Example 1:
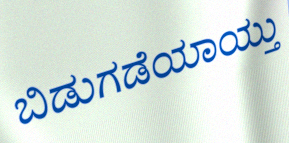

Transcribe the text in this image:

ಬಿಡುಗಡೆಯಾಯ್ತು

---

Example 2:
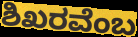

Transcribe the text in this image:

ಶಿಖರವೆಂಬ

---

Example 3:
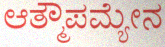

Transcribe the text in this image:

ಆತ್ಮೌಪಮ್ಯೇನ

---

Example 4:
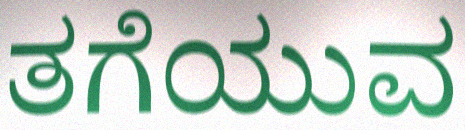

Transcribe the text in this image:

ತಗೆಯುವ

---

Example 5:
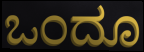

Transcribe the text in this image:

ಒಂದೂ